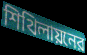
শিথিলায়নের